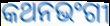
କଥନଭଂଗୀ